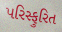
પરિસ્ફુરિત